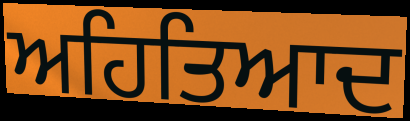
ਅਹਿਤਿਆਦ